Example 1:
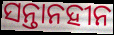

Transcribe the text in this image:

ସନ୍ତାନହୀନ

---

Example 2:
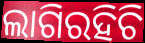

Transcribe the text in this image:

ଲାଗିରହିଚି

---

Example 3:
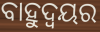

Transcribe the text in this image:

ବାହୁଦ୍ୱୟର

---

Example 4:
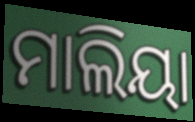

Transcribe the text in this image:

ମାଲିୟା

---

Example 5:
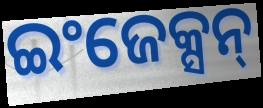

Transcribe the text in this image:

ଇଂଜେକ୍ସନ୍